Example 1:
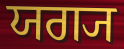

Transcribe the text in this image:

ਯਗ੍ਯ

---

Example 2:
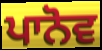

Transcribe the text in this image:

ਪਾਨੋਵ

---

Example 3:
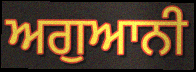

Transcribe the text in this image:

ਅਗੁਆਨੀ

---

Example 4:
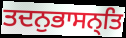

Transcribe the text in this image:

ਤਦਨੁਭਾਸਨ੍ਤਿ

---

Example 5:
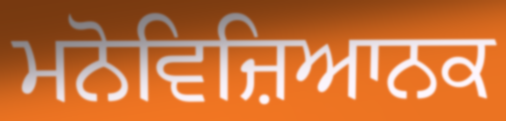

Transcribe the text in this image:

ਮਨੋਵਿਜ਼ਿਆਨਕ